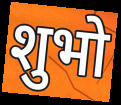
शुभो